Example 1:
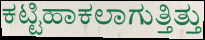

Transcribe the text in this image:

ಕಟ್ಟಿಹಾಕಲಾಗುತ್ತಿತ್ತು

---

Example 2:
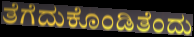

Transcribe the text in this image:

ತೆಗೆದುಕೊಂಡಿತೆಂದು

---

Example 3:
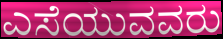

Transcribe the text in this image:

ಎಸೆಯುವವರು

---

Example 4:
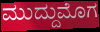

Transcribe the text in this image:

ಮುದ್ದುಮೊಗ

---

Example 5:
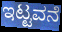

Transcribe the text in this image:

ಇಟ್ಟವನೆ